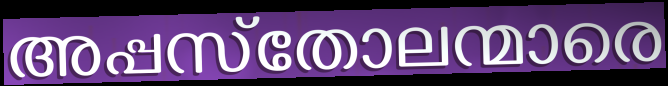
അപ്പസ്‌തോലന്മാരെ